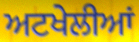
ਅਟਖੇਲੀਆਂ